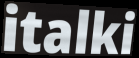
italki